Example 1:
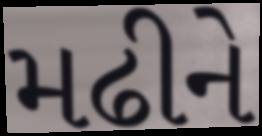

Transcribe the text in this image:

મઢીને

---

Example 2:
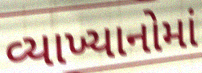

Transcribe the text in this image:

વ્યાખ્યાનોમાં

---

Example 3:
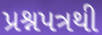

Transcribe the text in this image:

પ્રશ્નપત્રથી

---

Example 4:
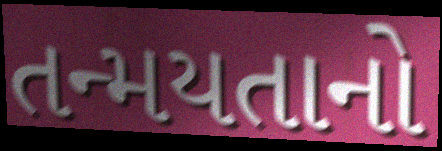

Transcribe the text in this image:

તન્મયતાનો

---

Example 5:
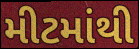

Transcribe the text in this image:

મીટમાંથી